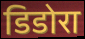
डिडोरा